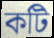
কটি